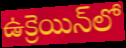
ఉక్రెయిన్‌లో